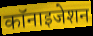
कॉनाइजेशन